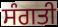
ਸੰਗਤੀ